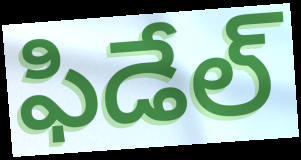
ఫిడేల్